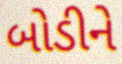
બોડીને